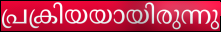
പ്രക്രിയയായിരുന്നു